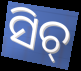
ସିଚ୍